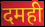
दमही